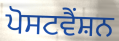
ਪੋਸਟਵੈਂਸ਼ਨ